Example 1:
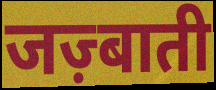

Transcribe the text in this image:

जज़्बाती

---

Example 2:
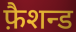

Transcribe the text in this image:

फ़ैशन्ड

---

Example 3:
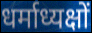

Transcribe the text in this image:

धर्माध्यक्षों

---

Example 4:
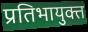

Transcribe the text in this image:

प्रतिभायुक्त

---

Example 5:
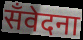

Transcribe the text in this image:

सँवेदना